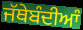
ਜੱਥੇਬੰਦੀਆੰ